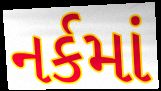
નર્કમાં